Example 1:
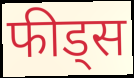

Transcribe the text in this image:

फीड्स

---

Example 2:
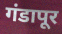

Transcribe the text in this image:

गंडापूर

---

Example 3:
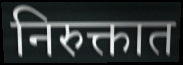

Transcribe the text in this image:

निरुक्तात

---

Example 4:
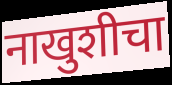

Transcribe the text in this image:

नाखुशीचा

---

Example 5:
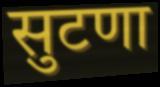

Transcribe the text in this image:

सुटणा